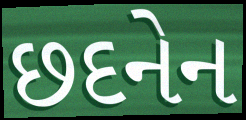
છદનેન